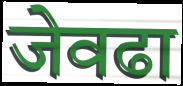
जेवढा